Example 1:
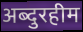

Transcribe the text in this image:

अब्दुरहीम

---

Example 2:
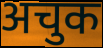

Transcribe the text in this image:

अचुक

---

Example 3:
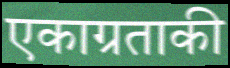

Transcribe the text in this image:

एकाग्रताकी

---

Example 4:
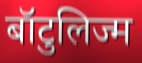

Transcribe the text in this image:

बॉटुलिज्म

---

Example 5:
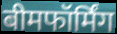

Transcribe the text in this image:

बीमफॉर्मिंग